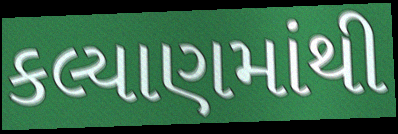
કલ્યાણમાંથી